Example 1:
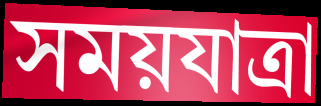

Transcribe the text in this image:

সময়যাত্রা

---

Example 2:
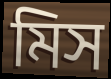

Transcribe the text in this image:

মিস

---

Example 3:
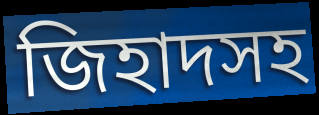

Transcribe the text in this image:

জিহাদসহ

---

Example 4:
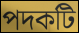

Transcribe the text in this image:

পদকটি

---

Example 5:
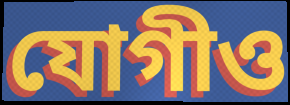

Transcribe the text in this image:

যোগীও